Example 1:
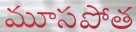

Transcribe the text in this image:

మూసపోత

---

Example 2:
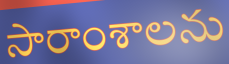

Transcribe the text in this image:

సారాంశాలను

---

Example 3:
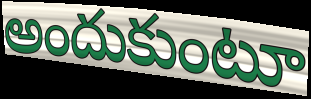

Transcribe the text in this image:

అందుకుంటూ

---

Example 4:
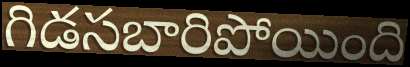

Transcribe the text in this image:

గిడసబారిపోయింది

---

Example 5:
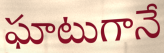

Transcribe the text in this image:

ఘాటుగానే